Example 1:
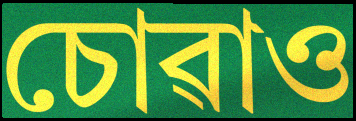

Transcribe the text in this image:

চোৱাও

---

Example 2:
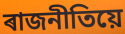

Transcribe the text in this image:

ৰাজনীতিয়ে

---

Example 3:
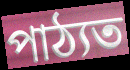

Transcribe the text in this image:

পাঠ্যত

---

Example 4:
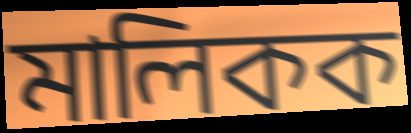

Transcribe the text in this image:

মালিকক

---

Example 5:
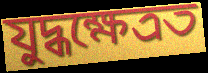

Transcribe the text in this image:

যুদ্ধক্ষেত্ৰত